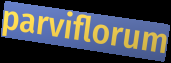
parviflorum